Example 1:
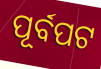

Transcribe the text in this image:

ପୂର୍ବପଟ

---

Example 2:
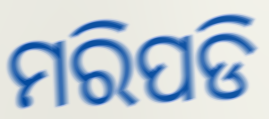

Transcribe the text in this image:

ମରିପଡି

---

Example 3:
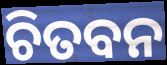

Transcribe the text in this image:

ଚିତବନ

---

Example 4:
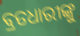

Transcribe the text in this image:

ବ୍ରତଧାରୀଙ୍କୁ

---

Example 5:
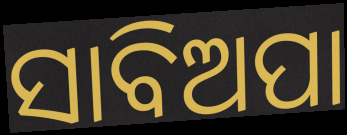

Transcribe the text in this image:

ସାବିଅପା